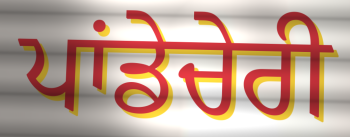
ਪਾਂਡੇਚੇਰੀ